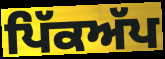
ਪਿੱਕਅੱਪ